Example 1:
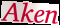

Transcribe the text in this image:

Aken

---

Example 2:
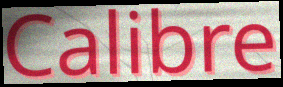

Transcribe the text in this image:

Calibre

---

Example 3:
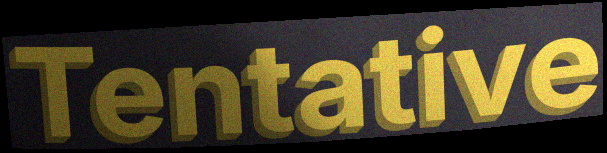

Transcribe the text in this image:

Tentative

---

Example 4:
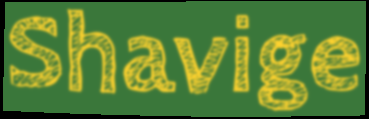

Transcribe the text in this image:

Shavige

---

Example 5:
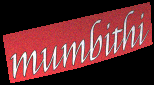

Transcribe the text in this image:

mumbithi